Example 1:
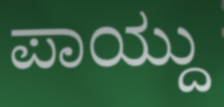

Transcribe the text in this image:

ಪಾಯ್ದು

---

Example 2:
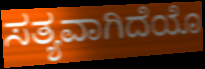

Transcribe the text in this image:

ಸತ್ಯವಾಗಿದೆಯೊ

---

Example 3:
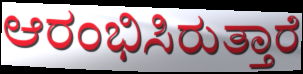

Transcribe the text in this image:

ಆರಂಭಿಸಿರುತ್ತಾರೆ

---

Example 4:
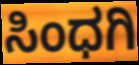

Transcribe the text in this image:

ಸಿಂಧಗಿ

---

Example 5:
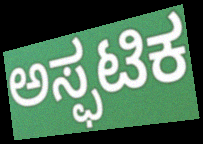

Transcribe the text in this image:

ಅಸ್ಫಟಿಕ